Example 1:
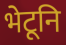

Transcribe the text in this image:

भेटूनि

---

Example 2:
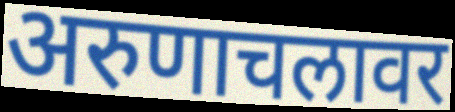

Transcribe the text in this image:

अरुणाचलावर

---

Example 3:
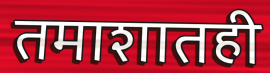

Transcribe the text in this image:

तमाशातही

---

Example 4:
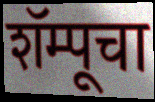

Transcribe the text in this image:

शॅम्पूचा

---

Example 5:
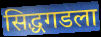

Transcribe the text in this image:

सिद्धगडला